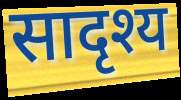
सादृश्य